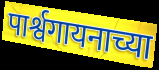
पार्श्वगायनाच्या